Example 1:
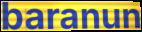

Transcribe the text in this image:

baranun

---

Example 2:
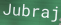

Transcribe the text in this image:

Jubraj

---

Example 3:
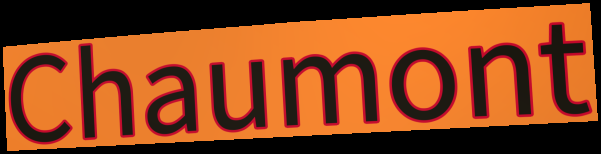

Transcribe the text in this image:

Chaumont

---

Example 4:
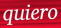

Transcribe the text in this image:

quiero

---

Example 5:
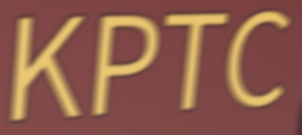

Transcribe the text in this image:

KPTC